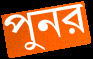
পুনর